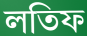
লতিফ